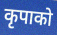
कृपाको